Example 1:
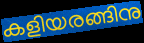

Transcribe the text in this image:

കളിയരങ്ങിനു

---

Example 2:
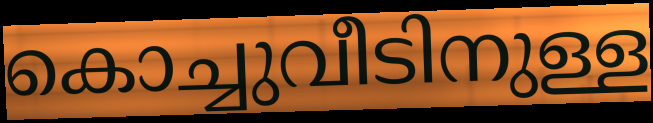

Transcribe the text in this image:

കൊച്ചുവീടിനുള്ള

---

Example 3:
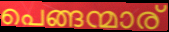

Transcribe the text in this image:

പെങ്ങന്മാര്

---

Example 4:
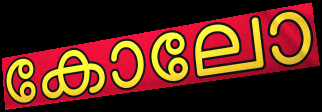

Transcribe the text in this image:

കോലോ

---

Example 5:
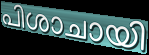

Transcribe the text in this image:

പിശാചായി